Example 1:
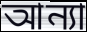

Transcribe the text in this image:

আন্যা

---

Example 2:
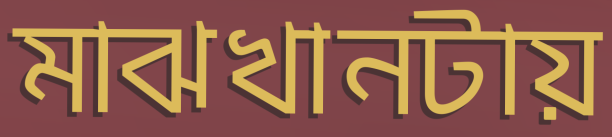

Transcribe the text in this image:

মাঝখানটায়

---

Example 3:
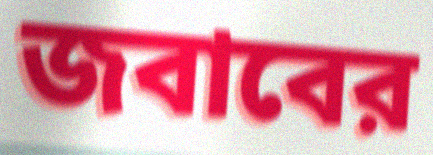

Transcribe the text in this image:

জবাবের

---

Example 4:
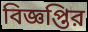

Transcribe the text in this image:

বিজ্ঞপ্তির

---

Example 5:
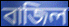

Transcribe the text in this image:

বাজিল